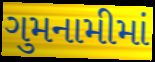
ગુમનામીમાં